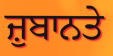
ਜ਼ੁਬਾਨਤੇ